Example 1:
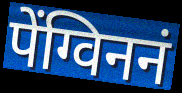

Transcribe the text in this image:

पेंग्विननं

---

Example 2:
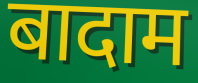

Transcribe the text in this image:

बादाम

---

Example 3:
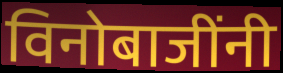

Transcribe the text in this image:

विनोबाजींनी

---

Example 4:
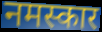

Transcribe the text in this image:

नमस्कार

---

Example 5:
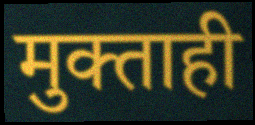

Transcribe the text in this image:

मुक्ताही